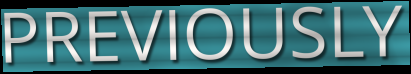
PREVIOUSLY